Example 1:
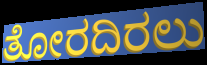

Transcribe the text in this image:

ತೋರದಿರಲು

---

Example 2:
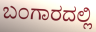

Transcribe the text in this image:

ಬಂಗಾರದಲ್ಲಿ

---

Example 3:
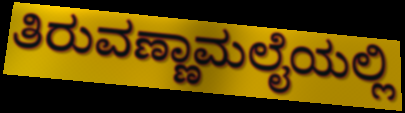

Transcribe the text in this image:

ತಿರುವಣ್ಣಾಮಲೈಯಲ್ಲಿ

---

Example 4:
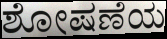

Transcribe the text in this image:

ಶೋಷಣೆಯ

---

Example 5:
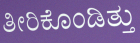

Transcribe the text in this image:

ತೀರಿಕೊಂಡಿತ್ತು